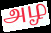
அழ